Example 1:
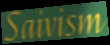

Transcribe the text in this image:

Saivism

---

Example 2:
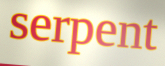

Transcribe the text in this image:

serpent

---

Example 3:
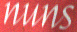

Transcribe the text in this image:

nuns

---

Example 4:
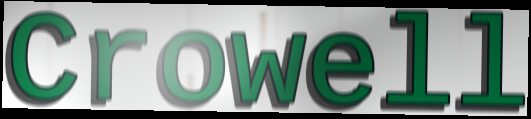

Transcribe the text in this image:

Crowell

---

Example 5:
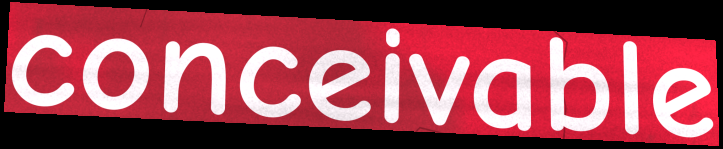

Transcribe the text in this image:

conceivable